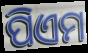
ପିଏମ